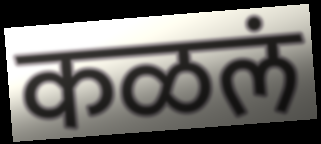
कळलं